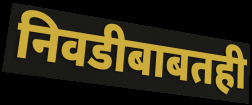
निवडीबाबतही